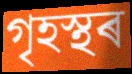
গৃহস্থৰ